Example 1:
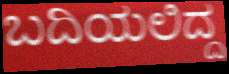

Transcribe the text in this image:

ಬದಿಯಲಿದ್ದ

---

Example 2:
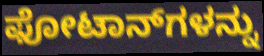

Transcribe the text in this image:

ಫೋಟಾನ್‌ಗಳನ್ನು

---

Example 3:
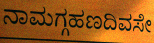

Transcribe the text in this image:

ನಾಮಗ್ಗಹಣದಿವಸೇ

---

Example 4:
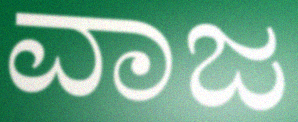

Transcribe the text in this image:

ವಾಜ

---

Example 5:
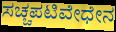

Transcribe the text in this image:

ಸಚ್ಚಪಟಿವೇಧೇನ